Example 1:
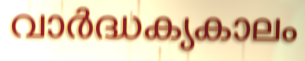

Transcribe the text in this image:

വാർദ്ധക്യകാലം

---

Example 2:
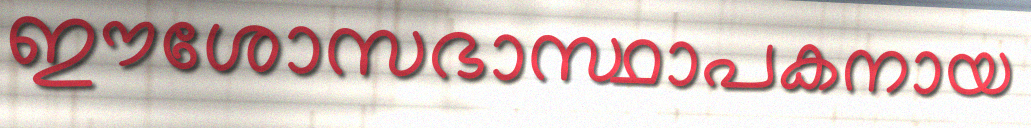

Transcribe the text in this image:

ഈശോസഭാസ്ഥാപകനായ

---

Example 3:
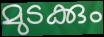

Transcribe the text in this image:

മുടക്കും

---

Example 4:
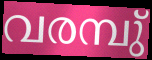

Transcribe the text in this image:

വരമ്പു്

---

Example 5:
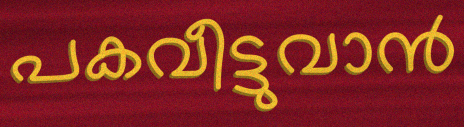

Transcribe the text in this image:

പകവീട്ടുവാൻ